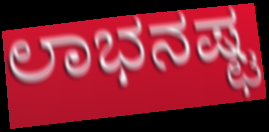
ಲಾಭನಷ್ಟ